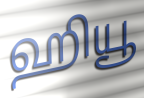
ஹியூ